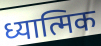
ध्यात्मिक